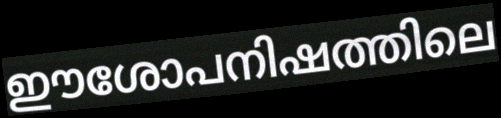
ഈശോപനിഷത്തിലെ